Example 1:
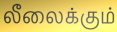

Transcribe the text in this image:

லீலைக்கும்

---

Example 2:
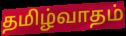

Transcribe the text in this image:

தமிழ்வாதம்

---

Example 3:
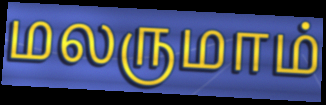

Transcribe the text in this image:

மலருமாம்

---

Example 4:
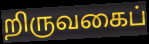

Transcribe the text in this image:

றிருவகைப்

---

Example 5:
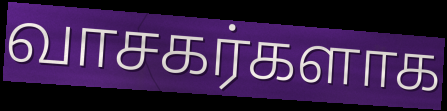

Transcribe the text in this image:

வாசகர்களாக